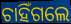
ଚାହିଁଗଲେ